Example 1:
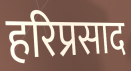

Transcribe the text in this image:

हरिप्रसाद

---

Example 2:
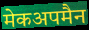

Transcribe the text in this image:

मेकअपमैन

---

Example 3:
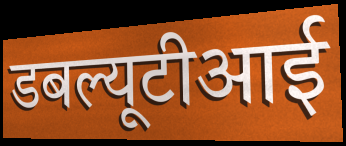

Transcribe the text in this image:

डबल्यूटीआई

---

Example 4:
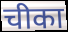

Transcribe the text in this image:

चीका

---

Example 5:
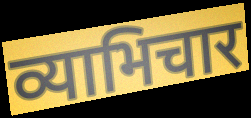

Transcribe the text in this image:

व्याभिचार